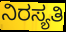
ನಿರಸ್ಯತಿ